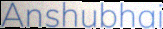
Anshubhai